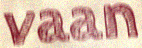
vaan